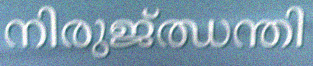
നിരുജ്ഝന്തി